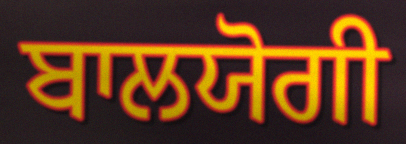
ਬਾਲਯੋਗੀ